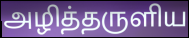
அழித்தருளிய